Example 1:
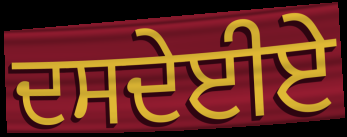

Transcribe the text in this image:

ਦਸਦੇਈਏ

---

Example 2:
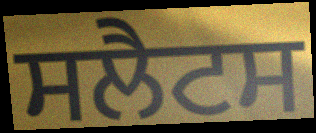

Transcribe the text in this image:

ਸਲੈਟਸ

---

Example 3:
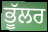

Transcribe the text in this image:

ਭੂੱਲਰ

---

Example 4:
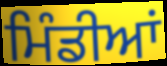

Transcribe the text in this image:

ਮਿੰਡੀਆਂ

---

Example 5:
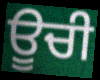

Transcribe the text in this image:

ਊਚੀ